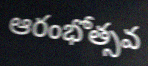
ఆరంభోత్సవ